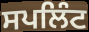
ਸਪਲਿੰਟ